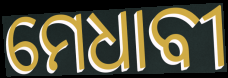
ମେଧାବୀ